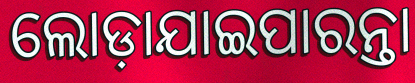
ଲୋଡ଼ାଯାଇପାରନ୍ତା